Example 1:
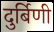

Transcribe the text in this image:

दुर्बिणी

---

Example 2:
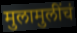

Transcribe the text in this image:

मुलामुलींचं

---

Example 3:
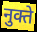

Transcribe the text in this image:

नुक्ते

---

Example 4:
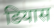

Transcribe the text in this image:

डियास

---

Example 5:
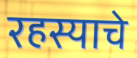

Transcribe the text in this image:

रहस्याचे